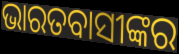
ଭାରତବାସୀଙ୍କର